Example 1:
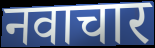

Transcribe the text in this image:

नवाचार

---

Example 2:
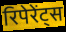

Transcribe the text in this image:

रिपेरेंट्स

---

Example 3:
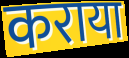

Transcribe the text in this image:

कराया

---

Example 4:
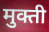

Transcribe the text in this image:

मुक्ती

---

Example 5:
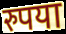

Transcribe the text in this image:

रुपया